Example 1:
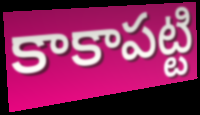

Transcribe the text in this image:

కాకాపట్టి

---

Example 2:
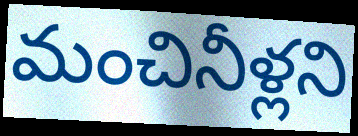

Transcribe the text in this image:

మంచినీళ్లని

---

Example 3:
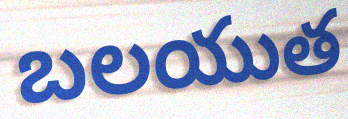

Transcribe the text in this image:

బలయుత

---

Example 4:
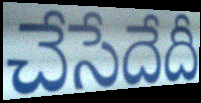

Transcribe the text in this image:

చేసేదేదీ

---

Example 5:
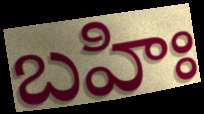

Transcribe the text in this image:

బహిః